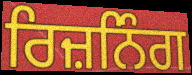
ਰਿਜ਼ਨਿੰਗ